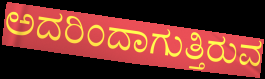
ಅದರಿಂದಾಗುತ್ತಿರುವ